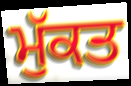
ਮੁੱਕਤ